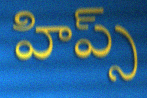
హిప్స్